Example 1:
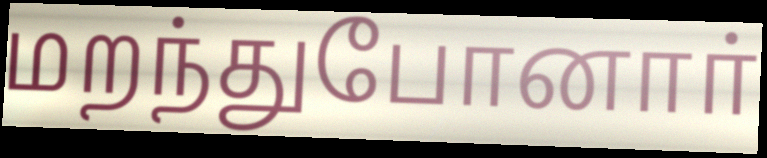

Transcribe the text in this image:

மறந்துபோனார்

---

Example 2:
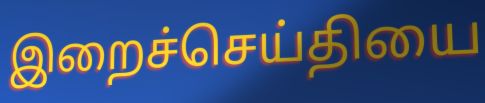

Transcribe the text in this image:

இறைச்செய்தியை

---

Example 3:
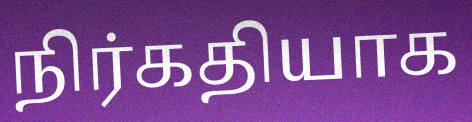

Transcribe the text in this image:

நிர்கதியாக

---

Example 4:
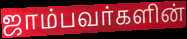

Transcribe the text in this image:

ஜாம்பவர்களின்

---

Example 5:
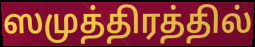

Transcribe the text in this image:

ஸமுத்திரத்தில்